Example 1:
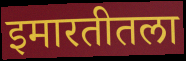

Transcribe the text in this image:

इमारतीतला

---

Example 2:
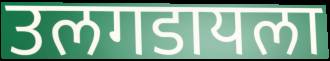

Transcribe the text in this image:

उलगडायला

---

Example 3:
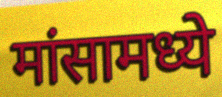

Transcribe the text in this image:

मांसामध्ये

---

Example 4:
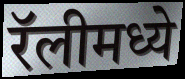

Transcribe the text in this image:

रॅलीमध्ये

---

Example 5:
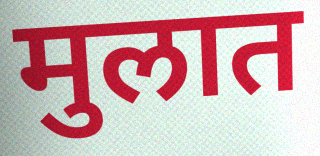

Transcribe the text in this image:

मुलात